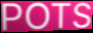
POTS